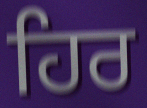
ਹਿਰ